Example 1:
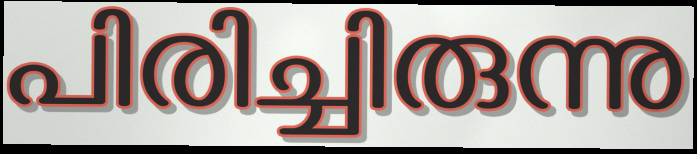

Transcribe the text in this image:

പിരിച്ചിരുന്നു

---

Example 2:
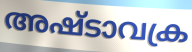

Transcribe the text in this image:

അഷ്ടാവക്ര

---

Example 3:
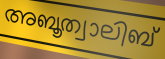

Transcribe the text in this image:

അബൂത്വാലിബ്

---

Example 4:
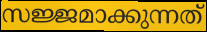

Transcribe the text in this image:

സജ്ജമാക്കുന്നത്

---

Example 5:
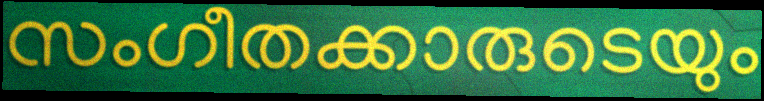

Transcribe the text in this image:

സംഗീതക്കാരുടെയും